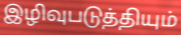
இழிவுபடுத்தியும்